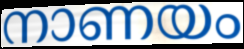
നാണയം